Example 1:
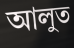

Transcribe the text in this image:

আলুত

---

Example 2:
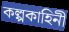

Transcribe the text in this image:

কল্পকাহিনী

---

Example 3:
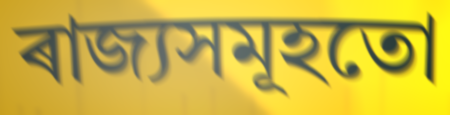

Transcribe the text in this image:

ৰাজ্যসমূহতো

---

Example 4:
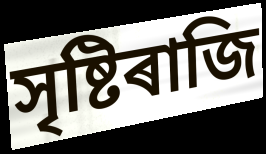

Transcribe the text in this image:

সৃষ্টিৰাজি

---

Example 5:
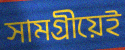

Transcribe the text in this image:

সামগ্ৰীয়েই